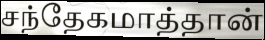
சந்தேகமாத்தான்